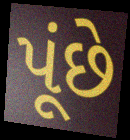
પૂંછે